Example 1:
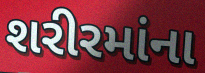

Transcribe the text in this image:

શરીરમાંના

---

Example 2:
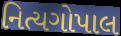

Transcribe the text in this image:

નિત્યગોપાલ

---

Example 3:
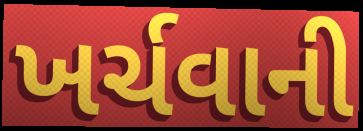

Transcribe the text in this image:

ખર્ચવાની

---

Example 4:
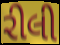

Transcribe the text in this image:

રીલી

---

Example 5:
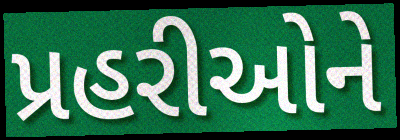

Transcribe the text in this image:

પ્રહરીઓને